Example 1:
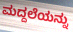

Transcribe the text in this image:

ಮದ್ದಲೆಯನ್ನು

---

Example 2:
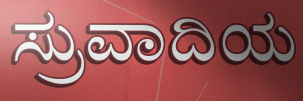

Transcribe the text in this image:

ಸ್ರುವಾದಿಯ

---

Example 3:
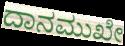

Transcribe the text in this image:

ದಾನಮುಖೇ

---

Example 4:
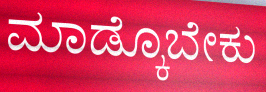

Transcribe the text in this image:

ಮಾಡ್ಕೊಬೇಕು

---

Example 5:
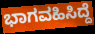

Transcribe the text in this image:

ಭಾಗವಹಿಸಿದ್ದೆ